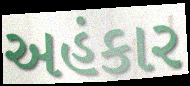
અહંકાર